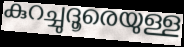
കുറച്ചുദൂരെയുള്ള